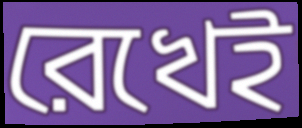
রেখেই